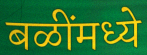
बळींमध्ये